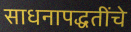
साधनापद्धतींचे